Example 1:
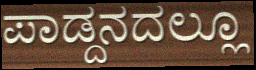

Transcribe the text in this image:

ಪಾಡ್ದನದಲ್ಲೂ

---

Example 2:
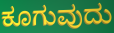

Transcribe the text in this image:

ಕೂಗುವುದು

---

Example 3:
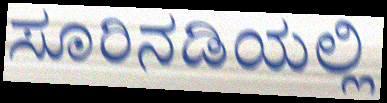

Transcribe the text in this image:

ಸೂರಿನಡಿಯಲ್ಲಿ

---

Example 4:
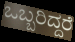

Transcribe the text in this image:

ಒಬ್ಬರಿದ್ದರೆ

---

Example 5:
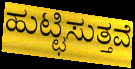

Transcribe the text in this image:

ಹುಟ್ಟಿಸುತ್ತವೆ